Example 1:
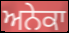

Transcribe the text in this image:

ਅਨੇਕਾ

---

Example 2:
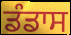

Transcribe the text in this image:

ਡੰਡਾਸ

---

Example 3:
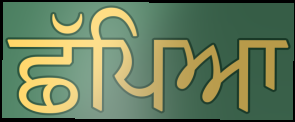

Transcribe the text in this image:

ਛੱਪਿਆ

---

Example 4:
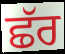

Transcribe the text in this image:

ਛੱਰ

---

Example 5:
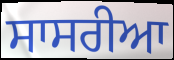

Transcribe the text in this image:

ਸਾਸਰੀਆ